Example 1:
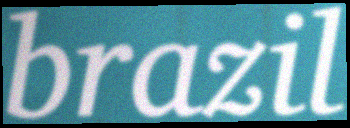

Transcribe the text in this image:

brazil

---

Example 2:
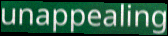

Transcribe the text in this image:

unappealing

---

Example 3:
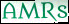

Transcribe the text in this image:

AMRs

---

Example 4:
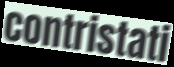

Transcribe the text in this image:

contristati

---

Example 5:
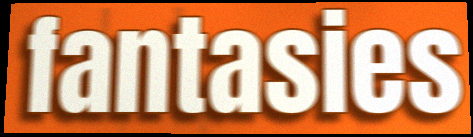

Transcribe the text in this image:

fantasies